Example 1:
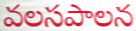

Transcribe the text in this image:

వలసపాలన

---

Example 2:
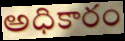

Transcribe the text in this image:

అధికారం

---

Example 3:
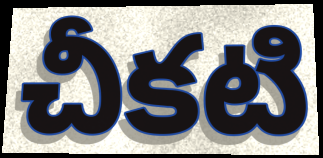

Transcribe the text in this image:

చీకటి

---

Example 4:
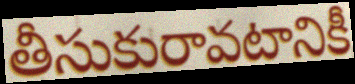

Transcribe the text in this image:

తీసుకురావటానికీ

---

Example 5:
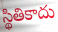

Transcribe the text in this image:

స్థితికాదు